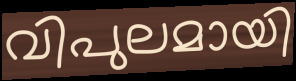
വിപുലമായി